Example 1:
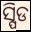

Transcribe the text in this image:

ସ୍ପିଡ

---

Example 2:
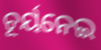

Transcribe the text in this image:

ଚୂର୍ୟନେଇ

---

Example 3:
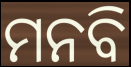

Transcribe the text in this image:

ମନବି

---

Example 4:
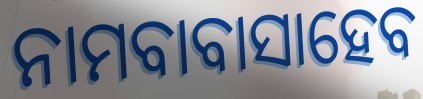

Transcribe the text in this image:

ନାମବାବାସାହେବ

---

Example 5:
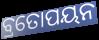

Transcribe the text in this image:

ବ୍ରତୋପୟନ